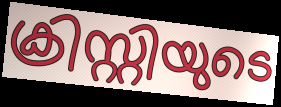
ക്രിസ്റ്റിയുടെ